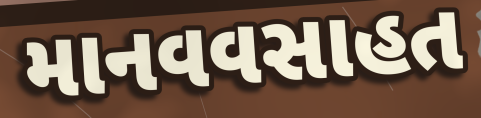
માનવવસાહત